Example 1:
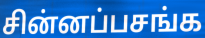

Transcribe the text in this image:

சின்னப்பசங்க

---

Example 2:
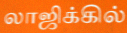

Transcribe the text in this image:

லாஜிக்கில்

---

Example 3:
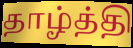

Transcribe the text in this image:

தாழ்த்தி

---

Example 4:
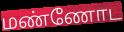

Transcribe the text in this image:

மண்ணோட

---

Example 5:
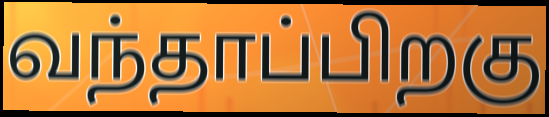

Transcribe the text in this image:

வந்தாப்பிறகு